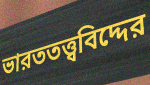
ভারততত্ত্ববিদ্দের